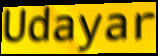
Udayar